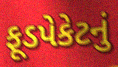
ફૂડપેકેટનું